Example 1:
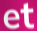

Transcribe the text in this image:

et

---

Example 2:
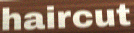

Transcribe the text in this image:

haircut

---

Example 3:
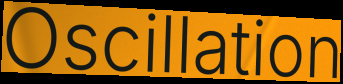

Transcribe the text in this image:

Oscillation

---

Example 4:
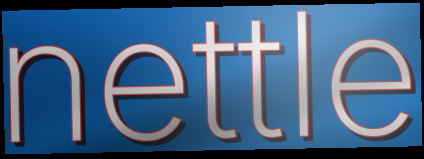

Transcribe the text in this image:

nettle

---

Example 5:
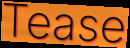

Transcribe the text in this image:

Tease